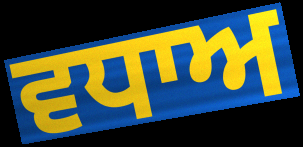
ਵਧਾਅ